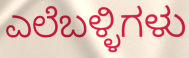
ಎಲೆಬಳ್ಳಿಗಳು